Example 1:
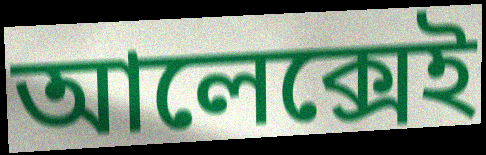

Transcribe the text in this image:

আলেক্সেই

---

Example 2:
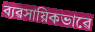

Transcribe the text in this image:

ব্যৱসায়িকভাৱে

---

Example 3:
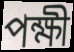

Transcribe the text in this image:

পক্ষী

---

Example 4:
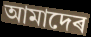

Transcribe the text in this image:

আমাদেৰ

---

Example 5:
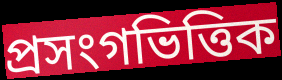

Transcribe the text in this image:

প্ৰসংগভিত্তিক